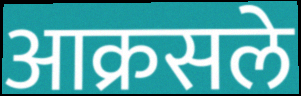
आक्रसले